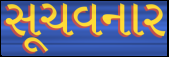
સૂચવનાર